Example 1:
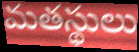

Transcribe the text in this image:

మతస్థులు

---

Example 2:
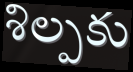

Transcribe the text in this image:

శిల్పకు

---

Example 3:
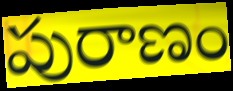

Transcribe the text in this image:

పురాణం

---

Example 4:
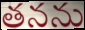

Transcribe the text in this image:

తనను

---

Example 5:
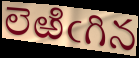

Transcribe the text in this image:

లెఱిఁగిన